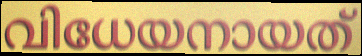
വിധേയനായത്